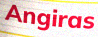
Angiras